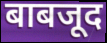
बाबजूद